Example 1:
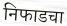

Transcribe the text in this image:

निफाडचा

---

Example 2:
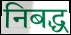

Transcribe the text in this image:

निबद्ध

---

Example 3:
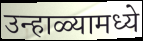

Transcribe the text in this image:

उन्हाळ्यामध्ये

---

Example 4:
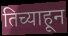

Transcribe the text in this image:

तिच्याहून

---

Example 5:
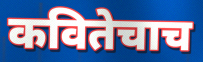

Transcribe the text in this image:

कवितेचाच